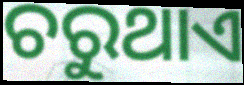
ଚରୁଥାଏ